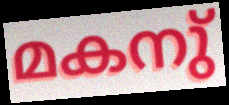
മകനു്